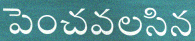
పెంచవలసిన